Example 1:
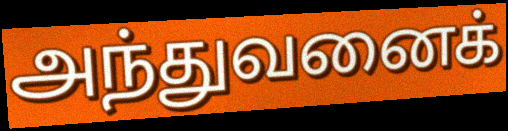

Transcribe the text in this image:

அந்துவனைக்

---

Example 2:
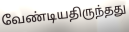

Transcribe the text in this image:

வேண்டியதிருந்தது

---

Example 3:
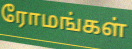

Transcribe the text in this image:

ரோமங்கள்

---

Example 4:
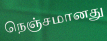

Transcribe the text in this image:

நெஞ்சமானது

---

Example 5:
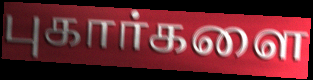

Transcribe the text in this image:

புகார்களை